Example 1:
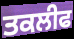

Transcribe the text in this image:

ਤਕਲੀਫ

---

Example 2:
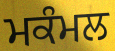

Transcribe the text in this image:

ਮਕੰਮਲ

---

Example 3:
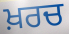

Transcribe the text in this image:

ਖ਼ਰਚ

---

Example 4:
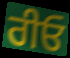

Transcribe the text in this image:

ਰੀਓ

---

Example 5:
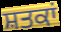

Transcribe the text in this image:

ਸ਼ਤਕਾਂ